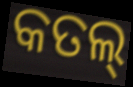
କତଲ୍